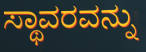
ಸ್ಥಾವರವನ್ನು